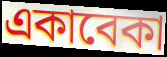
একাবেকা